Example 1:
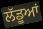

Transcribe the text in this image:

ਲੱਡੂਆਂ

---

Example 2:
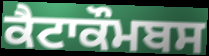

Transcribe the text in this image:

ਕੈਟਾਕੌਮਬਸ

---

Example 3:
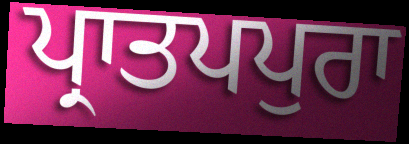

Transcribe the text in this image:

ਪ੍ਰਾਤਪਪੁਰਾ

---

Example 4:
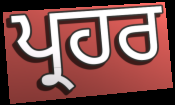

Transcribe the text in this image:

ਪ੍ਰਹਰ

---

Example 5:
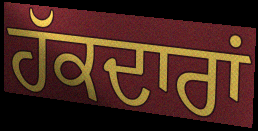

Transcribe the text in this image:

ਹੱਕਦਾਰਾਂ